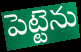
పెట్టెను